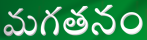
మగతనం